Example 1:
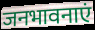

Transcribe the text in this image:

जनभावनाएं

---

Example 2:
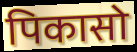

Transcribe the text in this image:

पिकासो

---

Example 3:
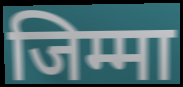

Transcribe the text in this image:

जिम्मा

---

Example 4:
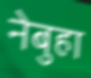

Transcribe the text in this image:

नेबुहा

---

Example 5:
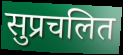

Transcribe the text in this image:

सुप्रचलित